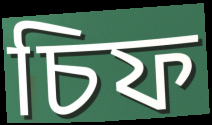
চিফ